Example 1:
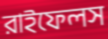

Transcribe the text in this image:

রাইফেলস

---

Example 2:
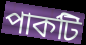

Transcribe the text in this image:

পার্কটি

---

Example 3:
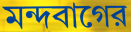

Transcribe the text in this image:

মন্দবাগের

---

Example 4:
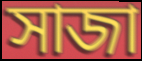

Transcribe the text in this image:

সাজা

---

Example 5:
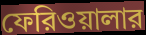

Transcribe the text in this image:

ফেরিওয়ালার